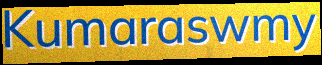
Kumaraswmy